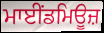
ਮਾਈਂਡਮਿਊਜ਼